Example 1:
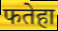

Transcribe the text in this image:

फतेहा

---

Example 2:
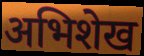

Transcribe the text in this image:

अभिशेख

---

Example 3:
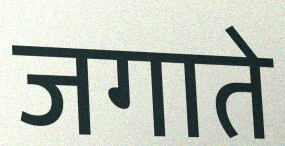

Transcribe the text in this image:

जगाते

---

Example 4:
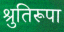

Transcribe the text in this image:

श्रुतिरूपा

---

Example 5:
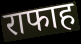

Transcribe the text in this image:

राफाह